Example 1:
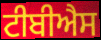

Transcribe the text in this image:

ਟੀਬੀਐਸ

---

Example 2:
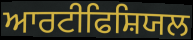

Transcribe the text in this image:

ਆਰਟੀਫਿਸ਼ਿਯਲ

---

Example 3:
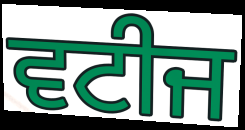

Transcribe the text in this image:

ਵਟੀਜ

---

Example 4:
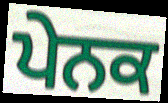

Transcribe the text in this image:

ਪੇਨਕ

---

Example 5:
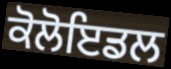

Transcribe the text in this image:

ਕੋਲੋਇਡਲ